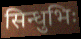
सिन्धुभिः